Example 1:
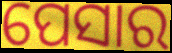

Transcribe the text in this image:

ପେସାର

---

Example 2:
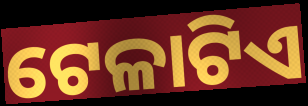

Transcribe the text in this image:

ଟେଳାଟିଏ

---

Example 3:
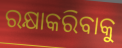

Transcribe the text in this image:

ରକ୍ଷାକରିବାକୁ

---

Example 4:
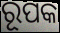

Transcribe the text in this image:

ରୂପକ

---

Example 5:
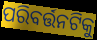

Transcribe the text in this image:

ପରିବର୍ତ୍ତନଟିକୁ